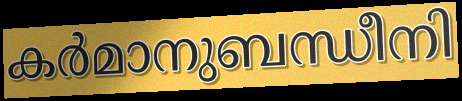
കർമാനുബന്ധീനി